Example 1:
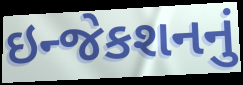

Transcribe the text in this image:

ઇન્જેકશનનું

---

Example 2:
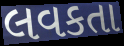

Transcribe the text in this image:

લવકતા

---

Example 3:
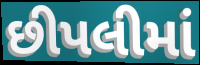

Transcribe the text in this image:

છીપલીમાં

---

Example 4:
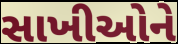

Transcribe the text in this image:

સાખીઓને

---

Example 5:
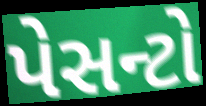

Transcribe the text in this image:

પેસન્ટો